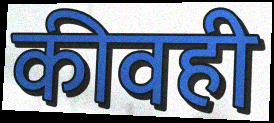
कीवही